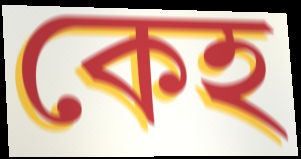
কেহ